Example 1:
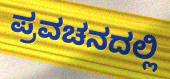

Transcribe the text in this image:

ಪ್ರವಚನದಲ್ಲಿ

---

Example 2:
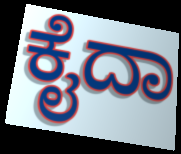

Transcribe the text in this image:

ಕೈದಾ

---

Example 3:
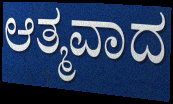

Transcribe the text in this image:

ಆತ್ಮವಾದ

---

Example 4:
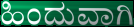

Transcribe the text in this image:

ಹಿಂದುವಾಗಿ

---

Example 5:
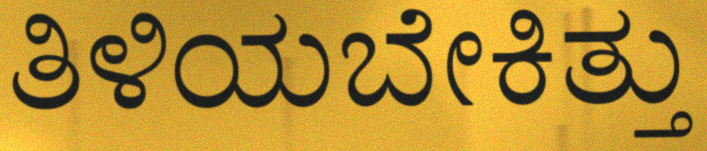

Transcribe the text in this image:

ತಿಳಿಯಬೇಕಿತ್ತು